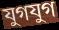
যুগযুগ